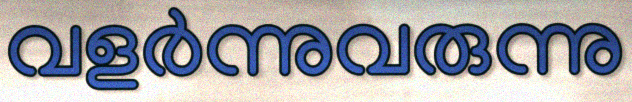
വളർന്നുവരുന്നു